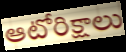
ఆటోరిక్షాలు